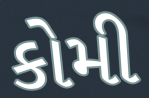
કોમી